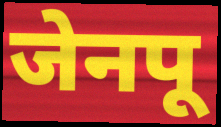
जेनपू